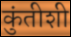
कुंतीशी